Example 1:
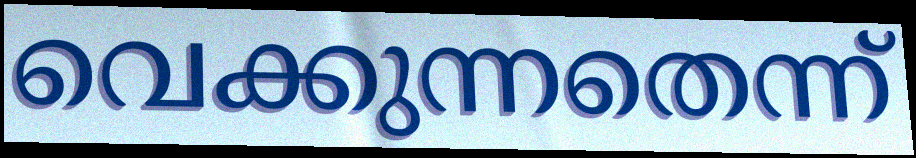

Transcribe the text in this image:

വെക്കുന്നതെന്ന്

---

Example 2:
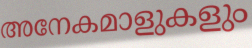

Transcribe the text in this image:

അനേകമാളുകളും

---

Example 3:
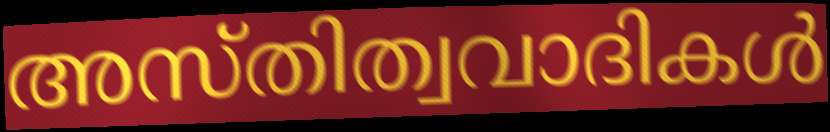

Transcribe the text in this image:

അസ്തിത്വവാദികൾ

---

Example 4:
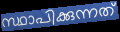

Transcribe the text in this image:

സ്ഥാപിക്കുന്നത്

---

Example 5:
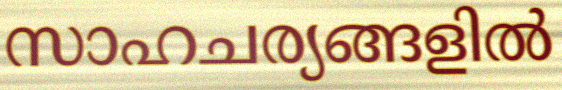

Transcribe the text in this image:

സാഹചര്യങ്ങളിൽ